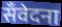
सँवेदना